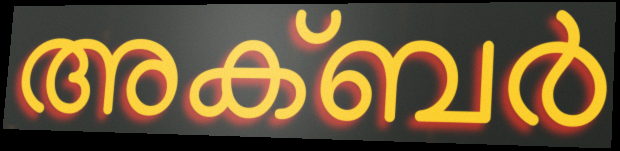
അക്ബർ